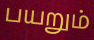
பயறும்